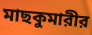
মাছকুমারীর